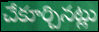
చేకూర్చినట్లు